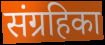
संग्रहिका